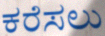
ಕರೆಸಲು